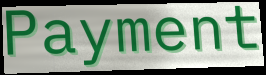
Payment